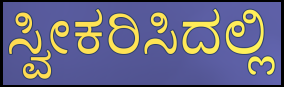
ಸ್ವೀಕರಿಸಿದಲ್ಲಿ